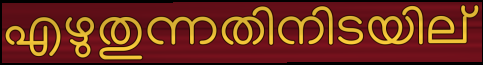
എഴുതുന്നതിനിടയില്